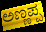
ಅಣ್ಣಪ್ಪ